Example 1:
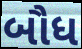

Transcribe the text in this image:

બૌધ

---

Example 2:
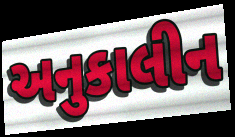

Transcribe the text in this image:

અનુકાલીન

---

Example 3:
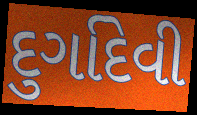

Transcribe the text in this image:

દુર્ગાદેવી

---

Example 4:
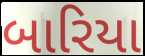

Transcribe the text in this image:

બારિયા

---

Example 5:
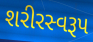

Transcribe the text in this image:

શરીરસ્વરૂપ